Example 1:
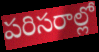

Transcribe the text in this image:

పరిసరాల్లో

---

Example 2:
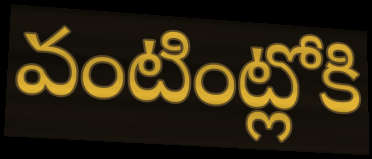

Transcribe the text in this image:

వంటింట్లోకి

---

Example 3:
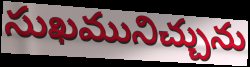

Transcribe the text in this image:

సుఖమునిచ్చును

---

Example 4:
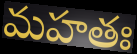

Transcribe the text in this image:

మహతః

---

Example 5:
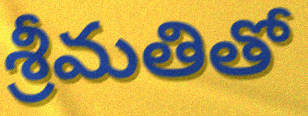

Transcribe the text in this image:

శ్రీమతితో